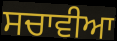
ਸਚਾਵੀਆ